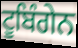
ਟੂਬਿੰਗੇਨ